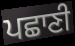
ਪਛਾਣੀ